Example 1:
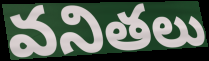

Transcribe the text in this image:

వనితలు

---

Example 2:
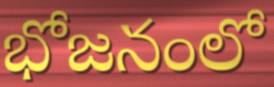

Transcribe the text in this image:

భోజనంలో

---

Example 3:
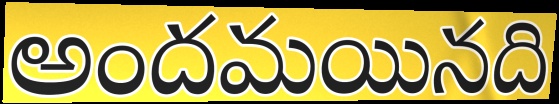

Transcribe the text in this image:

అందమయినది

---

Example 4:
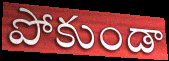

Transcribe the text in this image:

పోకుండా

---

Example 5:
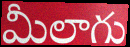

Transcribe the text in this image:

మీలాగు